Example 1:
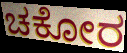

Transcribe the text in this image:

ಚಕೋರ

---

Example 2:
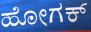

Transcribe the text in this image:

ಹೋಗಕ್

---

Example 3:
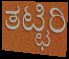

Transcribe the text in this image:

ತಟ್ಟಿರಿ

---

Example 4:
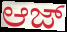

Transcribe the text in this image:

ಆಜ್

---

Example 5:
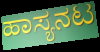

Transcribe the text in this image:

ಹಾಸ್ಯನಟ